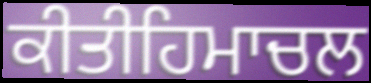
ਕੀਤੀਹਿਮਾਚਲ